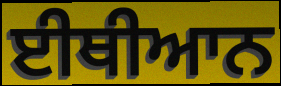
ਈਥੀਆਨ